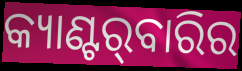
କ୍ୟାଣ୍ଟର୍‌ବାରିର